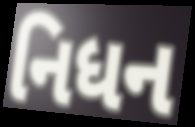
નિધન